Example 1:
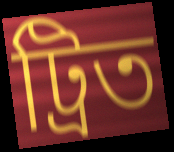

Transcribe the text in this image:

ট্ৰিত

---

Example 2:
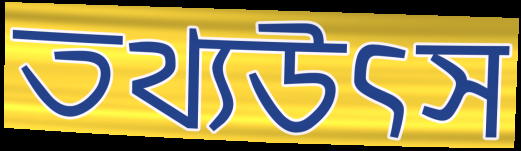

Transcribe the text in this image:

তথ্যউৎস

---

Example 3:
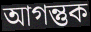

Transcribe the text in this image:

আগন্তুক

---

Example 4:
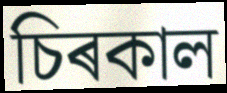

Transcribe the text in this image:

চিৰকাল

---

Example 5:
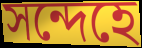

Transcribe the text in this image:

সন্দেহে